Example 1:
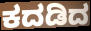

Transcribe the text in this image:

ಕದಡಿದ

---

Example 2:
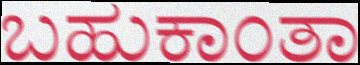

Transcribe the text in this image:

ಬಹುಕಾಂತಾ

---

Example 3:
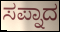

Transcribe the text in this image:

ಸಪ್ನಾದ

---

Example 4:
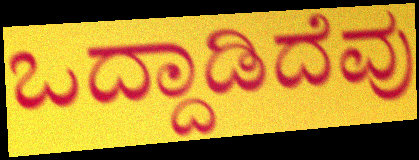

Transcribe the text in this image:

ಒದ್ದಾಡಿದೆವು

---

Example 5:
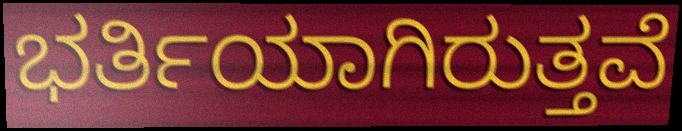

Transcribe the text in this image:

ಭರ್ತಿಯಾಗಿರುತ್ತವೆ